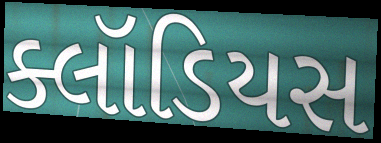
ક્લૉડિયસ